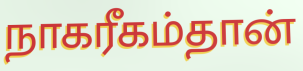
நாகரீகம்தான்